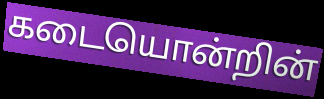
கடையொன்றின்